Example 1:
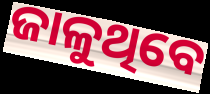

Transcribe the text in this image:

ଜାଳୁଥିବେ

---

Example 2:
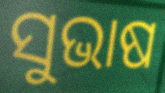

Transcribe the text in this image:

ସୁଭାଷ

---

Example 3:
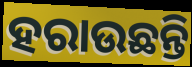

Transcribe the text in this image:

ହରାଉଛନ୍ତି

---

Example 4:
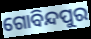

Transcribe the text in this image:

ଗୋବିନ୍ଦପୁର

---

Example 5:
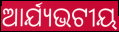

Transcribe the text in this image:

ଆର୍ଯ୍ୟଭଟୀୟ